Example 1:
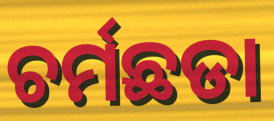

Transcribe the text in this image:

ଚର୍ମଛଡା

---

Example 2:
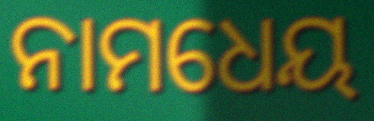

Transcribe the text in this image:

ନାମଧେୟ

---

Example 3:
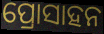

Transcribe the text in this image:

ପ୍ରୋସାହନ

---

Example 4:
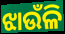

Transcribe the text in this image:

ଝାଉଁଳି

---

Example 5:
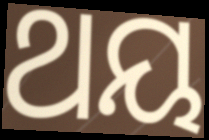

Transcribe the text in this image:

ଥୟ